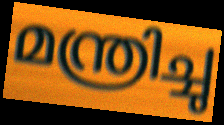
മന്ത്രിച്ചു